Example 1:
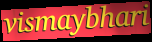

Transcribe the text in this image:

vismaybhari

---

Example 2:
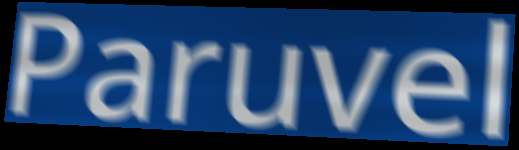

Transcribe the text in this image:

Paruvel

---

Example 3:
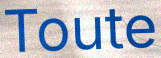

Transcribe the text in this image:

Toute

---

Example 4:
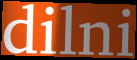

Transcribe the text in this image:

dilni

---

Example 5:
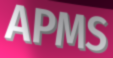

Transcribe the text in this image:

APMS